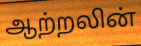
ஆற்றலின்